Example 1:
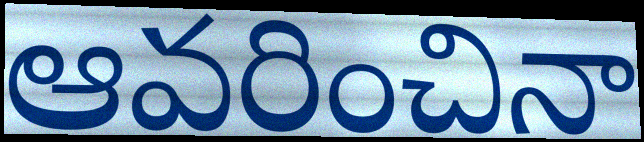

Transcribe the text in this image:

ఆవరించినా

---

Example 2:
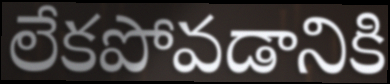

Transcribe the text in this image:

లేకపోవడానికి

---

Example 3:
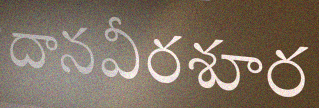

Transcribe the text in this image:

దానవీరశూర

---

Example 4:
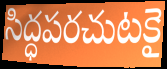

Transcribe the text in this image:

సిద్ధపరచుటకై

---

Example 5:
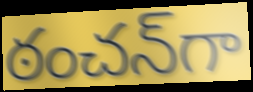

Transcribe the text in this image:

ఠంచన్‌గా